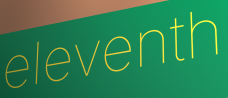
eleventh